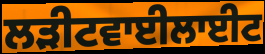
ਲੜੀਟਵਾਈਲਾਈਟ